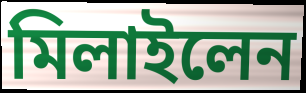
মিলাইলেন